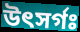
উৎসর্গঃ